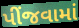
પીંજવામાં